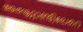
അരനൂറ്റാണ്ടിലേറെ